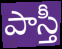
పాస్తీ